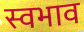
स्वभाव